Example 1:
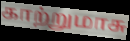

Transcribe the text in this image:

காற்றுமாசு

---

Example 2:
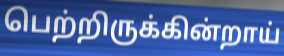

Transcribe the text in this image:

பெற்றிருக்கின்றாய்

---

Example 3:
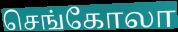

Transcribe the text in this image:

செங்கோலா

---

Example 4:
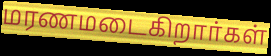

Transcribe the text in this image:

மரணமடைகிறார்கள்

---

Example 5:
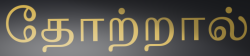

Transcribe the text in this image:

தோற்றால்